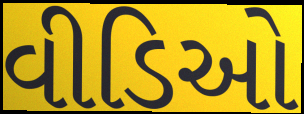
વીડિઓ